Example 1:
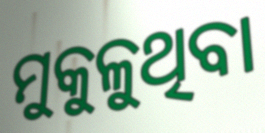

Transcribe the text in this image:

ମୁକୁଳୁଥିବା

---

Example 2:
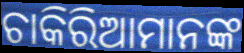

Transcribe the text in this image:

ଚାକିରିଆମାନଙ୍କ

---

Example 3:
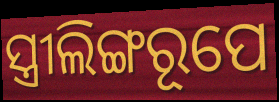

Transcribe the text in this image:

ସ୍ତ୍ରୀଲିଙ୍ଗରୂପେ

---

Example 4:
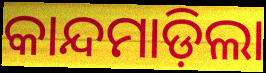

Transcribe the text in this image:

କାନ୍ଦମାଡ଼ିଲା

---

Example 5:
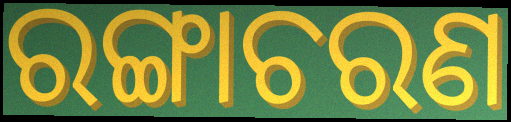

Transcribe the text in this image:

ରଙ୍ଗାଚରଣ